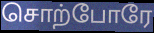
சொற்போரே